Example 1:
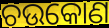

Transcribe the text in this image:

ଚଉକୋଣ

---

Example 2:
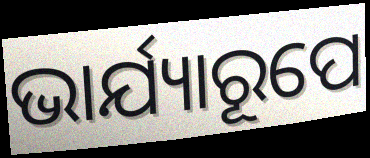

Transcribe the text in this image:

ଭାର୍ଯ୍ୟାରୂପେ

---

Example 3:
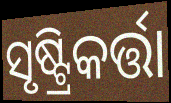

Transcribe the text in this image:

ସୃଷ୍ଟ୍ରିକର୍ତ୍ତା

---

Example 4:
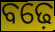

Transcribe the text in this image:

ବଢ଼େ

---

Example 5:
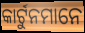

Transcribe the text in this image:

କାର୍ଟୁନମାନେ